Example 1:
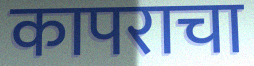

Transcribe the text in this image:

कापराचा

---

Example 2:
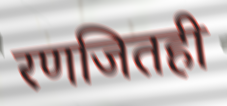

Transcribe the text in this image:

रणजितही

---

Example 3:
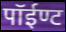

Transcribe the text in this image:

पॉईण्ट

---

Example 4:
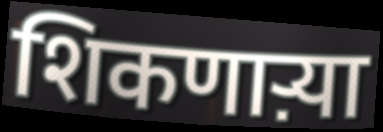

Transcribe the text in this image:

शिकणाऱ्‍या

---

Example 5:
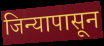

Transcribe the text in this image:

जिन्यापासून